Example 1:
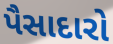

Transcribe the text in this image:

પૈસાદારો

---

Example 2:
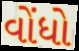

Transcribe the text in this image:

વોંધો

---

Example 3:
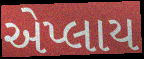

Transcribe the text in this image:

એપ્લાય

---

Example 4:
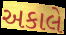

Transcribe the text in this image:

અકાલે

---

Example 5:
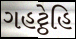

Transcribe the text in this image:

ગહટ્ઠેહિ